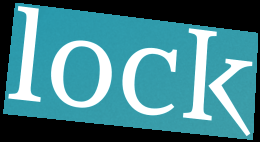
lock